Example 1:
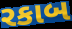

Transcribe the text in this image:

રકાબ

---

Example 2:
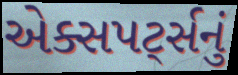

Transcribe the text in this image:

એક્સપર્ટ્સનું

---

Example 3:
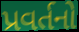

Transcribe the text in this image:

પ્રવર્તનો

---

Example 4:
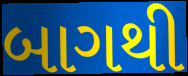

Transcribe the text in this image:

બાગથી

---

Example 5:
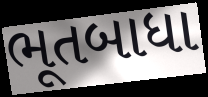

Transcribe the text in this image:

ભૂતબાધા